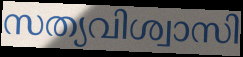
സത്യവിശ്വാസി